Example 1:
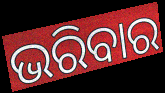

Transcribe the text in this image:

ଭରିବାର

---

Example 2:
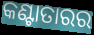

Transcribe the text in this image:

କଣ୍ଟାତାରର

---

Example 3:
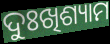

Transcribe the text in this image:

ଦୁଃଖିଶ୍ୟାମ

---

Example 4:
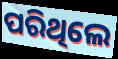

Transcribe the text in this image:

ପରିଥିଲେ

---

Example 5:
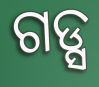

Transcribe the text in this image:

ଗଡ୍ସ